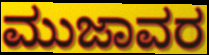
ಮುಜಾವರ